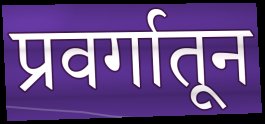
प्रवर्गातून